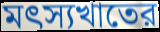
মৎস্যখাতের